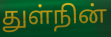
துள்நின்